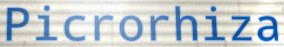
Picrorhiza